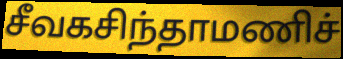
சீவகசிந்தாமணிச்